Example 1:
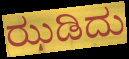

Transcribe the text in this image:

ಝಡಿದು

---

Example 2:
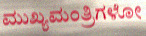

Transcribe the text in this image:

ಮುಖ್ಯಮಂತ್ರಿಗಳೋ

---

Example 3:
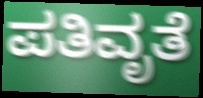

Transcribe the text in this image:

ಪತಿವೃತೆ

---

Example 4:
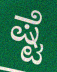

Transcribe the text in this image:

ಷ್ಟೆ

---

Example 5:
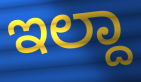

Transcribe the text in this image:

ಇಲ್ದಾ